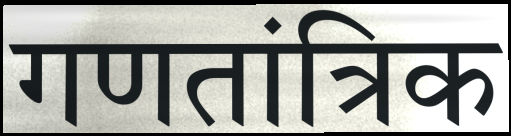
गणतांत्रिक